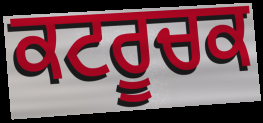
ਕਟਰੂਚਕ